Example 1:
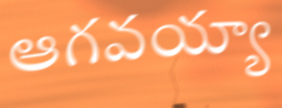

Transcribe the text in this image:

ఆగవయ్యా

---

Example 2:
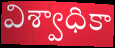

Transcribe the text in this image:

విశ్వాధికా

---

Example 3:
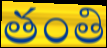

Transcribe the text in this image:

తంతి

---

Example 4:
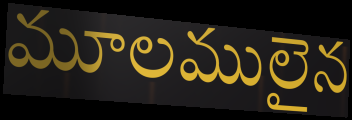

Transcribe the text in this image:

మూలములైన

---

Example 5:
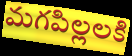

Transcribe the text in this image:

మగపిల్లలకి